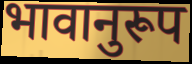
भावानुरूप